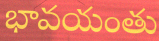
భావయంతు